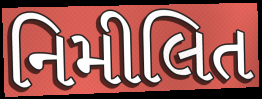
નિમીલિત